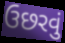
ઉછરવું